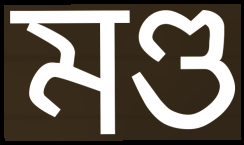
মণ্ড